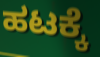
ಹಟಕ್ಕೆ